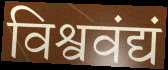
विश्ववंद्यं